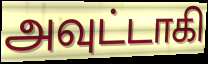
அவுட்டாகி